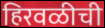
हिरवळीची